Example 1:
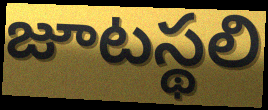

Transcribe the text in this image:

జూటస్థలి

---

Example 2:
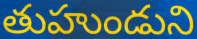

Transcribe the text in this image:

తుహుండుని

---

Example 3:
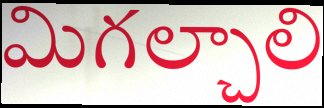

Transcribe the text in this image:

మిగల్చాలి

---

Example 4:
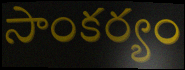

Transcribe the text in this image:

సాంకర్యం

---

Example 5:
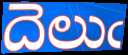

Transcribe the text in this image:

దెలుఁ